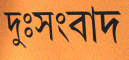
দুঃসংবাদ